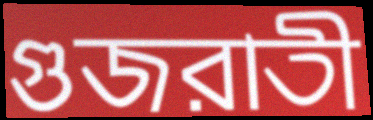
গুজরাতী